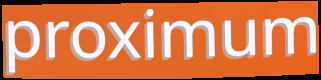
proximum